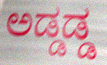
ಅಡ್ಡಡ್ಡ